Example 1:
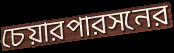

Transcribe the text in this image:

চেয়ারপারসনের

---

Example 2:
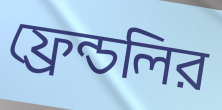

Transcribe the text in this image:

ফ্রেন্ডলির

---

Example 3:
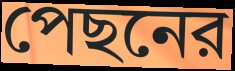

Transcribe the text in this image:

পেছনের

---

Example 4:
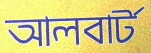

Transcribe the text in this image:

আলবার্ট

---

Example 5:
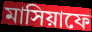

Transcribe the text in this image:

মাসিয়াফে